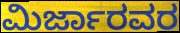
ಮಿರ್ಜಾರವರ